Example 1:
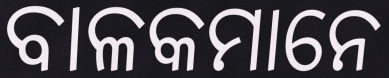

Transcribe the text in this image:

ବାଳକମାନେ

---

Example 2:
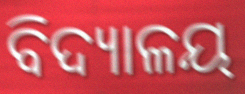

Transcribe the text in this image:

ବିଦ୍ଯାଳୟ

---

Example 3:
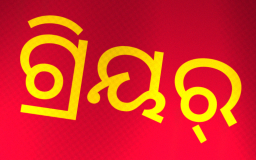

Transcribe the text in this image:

ଗ୍ରିୟର୍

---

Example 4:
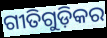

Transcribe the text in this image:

ଗୀତିଗୁଡ଼ିକର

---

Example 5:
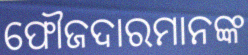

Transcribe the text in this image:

ଫୌଜଦାରମାନଙ୍କ